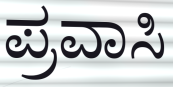
ಪ್ರವಾಸಿ